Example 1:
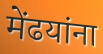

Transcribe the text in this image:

मेंढयांना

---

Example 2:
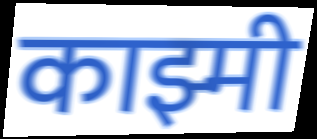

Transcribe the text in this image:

काझ्मी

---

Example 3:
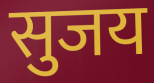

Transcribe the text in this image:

सुजय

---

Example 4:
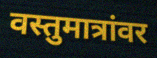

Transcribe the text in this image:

वस्तुमात्रांवर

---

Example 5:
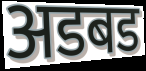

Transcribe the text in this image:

अडबड